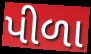
પીળા